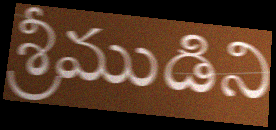
శ్రీముడిని